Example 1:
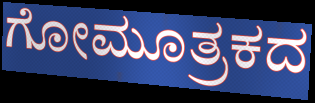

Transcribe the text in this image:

ಗೋಮೂತ್ರಕದ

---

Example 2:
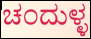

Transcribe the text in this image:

ಚಂದುಳ್ಳ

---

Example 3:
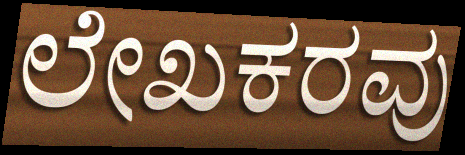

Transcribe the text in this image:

ಲೇಖಕರವು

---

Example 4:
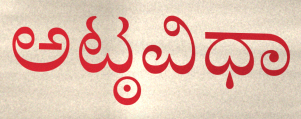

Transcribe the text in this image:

ಅಟ್ಠವಿಧಾ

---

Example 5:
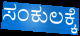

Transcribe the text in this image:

ಸಂಕುಲಕ್ಕೆ